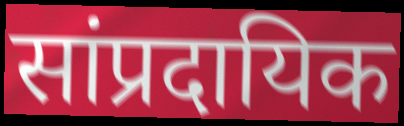
सांप्रदायिक